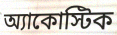
অ্যাকোস্টিক